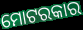
ମୋଟରକାର